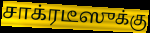
சாக்ரடீஸுக்கு